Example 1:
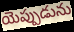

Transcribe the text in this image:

యెప్పుడును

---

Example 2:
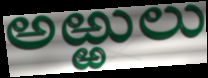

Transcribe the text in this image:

అఱ్ఱులు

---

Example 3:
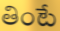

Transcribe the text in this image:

తింటే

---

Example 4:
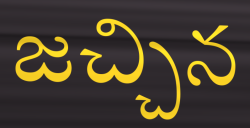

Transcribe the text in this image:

జచ్చిన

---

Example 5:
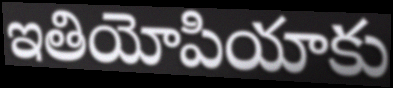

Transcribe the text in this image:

ఇతియోపియాకు